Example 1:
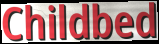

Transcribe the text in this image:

Childbed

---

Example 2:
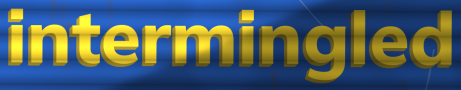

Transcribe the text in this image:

intermingled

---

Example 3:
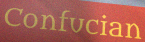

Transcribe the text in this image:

Confucian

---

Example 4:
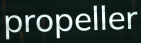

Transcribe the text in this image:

propeller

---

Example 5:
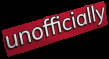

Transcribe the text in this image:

unofficially